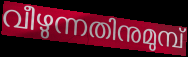
വീഴുന്നതിനുമുമ്പ്